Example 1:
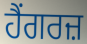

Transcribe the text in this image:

ਹੈਂਗਰਜ਼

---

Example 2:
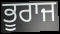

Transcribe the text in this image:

ਭੂਰਾਜ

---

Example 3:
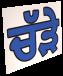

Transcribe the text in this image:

ਚੱੜੇ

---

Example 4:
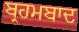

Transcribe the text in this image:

ਬ੍ਰਹਮਬਾਦ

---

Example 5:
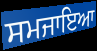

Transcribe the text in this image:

ਸਮਜਾਇਆ